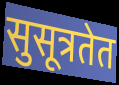
सुसूत्रतेत